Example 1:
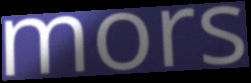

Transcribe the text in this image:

mors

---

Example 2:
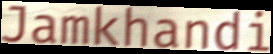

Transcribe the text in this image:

Jamkhandi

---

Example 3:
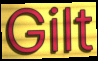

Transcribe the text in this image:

Gilt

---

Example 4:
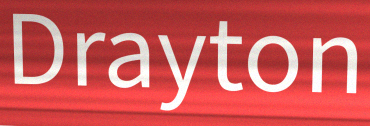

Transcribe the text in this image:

Drayton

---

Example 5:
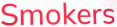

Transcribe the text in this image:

Smokers